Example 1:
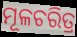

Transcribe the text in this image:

ମୂଳଚରିତ୍ର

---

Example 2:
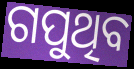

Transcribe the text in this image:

ଗପୁଥିବ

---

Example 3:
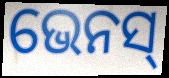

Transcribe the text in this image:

ଭେନସ୍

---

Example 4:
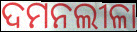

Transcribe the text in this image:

ଦମନଲୀଳା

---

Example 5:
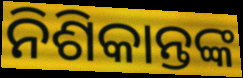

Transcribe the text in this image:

ନିଶିକାନ୍ତଙ୍କ